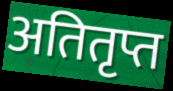
अतितृप्त